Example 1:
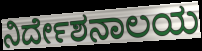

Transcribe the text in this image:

ನಿರ್ದೇಶನಾಲಯ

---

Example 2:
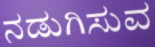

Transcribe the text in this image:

ನಡುಗಿಸುವ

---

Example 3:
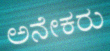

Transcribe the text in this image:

ಅನೇಕರು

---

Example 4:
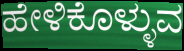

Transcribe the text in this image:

ಹೇಳಿಕೊಳ್ಳುವ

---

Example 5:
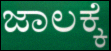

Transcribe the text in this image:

ಜಾಲಕ್ಕೆ